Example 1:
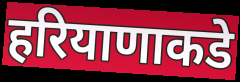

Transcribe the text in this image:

हरियाणाकडे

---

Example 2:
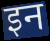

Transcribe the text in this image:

इन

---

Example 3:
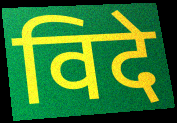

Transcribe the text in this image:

विदे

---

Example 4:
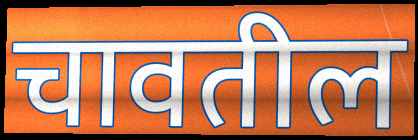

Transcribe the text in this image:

चावतील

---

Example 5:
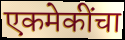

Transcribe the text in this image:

एकमेकींचा